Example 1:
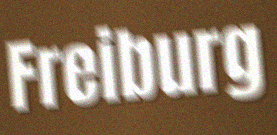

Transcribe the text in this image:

Freiburg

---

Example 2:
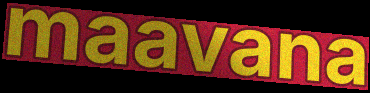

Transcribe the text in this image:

maavana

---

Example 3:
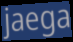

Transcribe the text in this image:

jaega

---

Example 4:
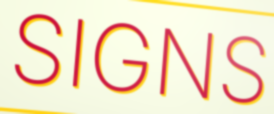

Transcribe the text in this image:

SIGNS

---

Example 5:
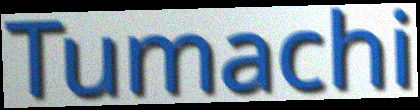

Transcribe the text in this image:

Tumachi